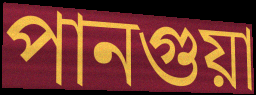
পানগুয়া